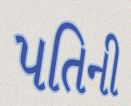
પતિની